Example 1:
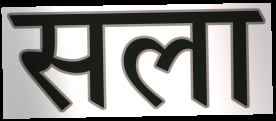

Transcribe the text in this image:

सला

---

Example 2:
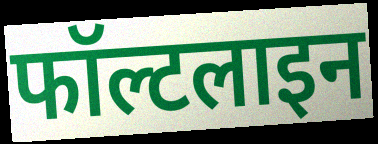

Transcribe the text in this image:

फॉल्टलाइन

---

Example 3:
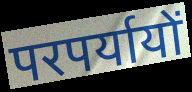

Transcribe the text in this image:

परपर्यायों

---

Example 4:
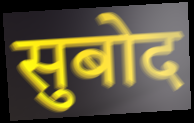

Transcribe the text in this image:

सुबोद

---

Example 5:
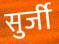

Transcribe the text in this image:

सुर्जी